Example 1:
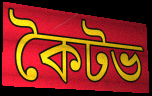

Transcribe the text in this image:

কৈটভ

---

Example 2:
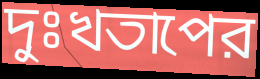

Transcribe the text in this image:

দুঃখতাপের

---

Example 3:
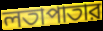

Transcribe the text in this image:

লতাপাতার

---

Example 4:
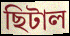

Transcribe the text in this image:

ছিটাল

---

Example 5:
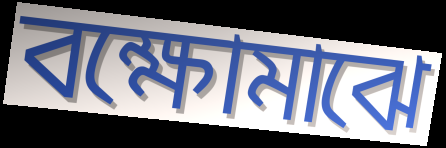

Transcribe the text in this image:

বক্ষোমাঝে